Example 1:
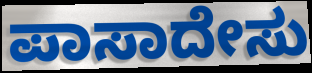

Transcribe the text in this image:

ಪಾಸಾದೇಸು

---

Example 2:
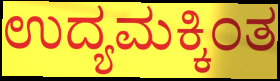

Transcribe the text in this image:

ಉದ್ಯಮಕ್ಕಿಂತ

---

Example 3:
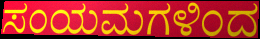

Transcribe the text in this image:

ಸಂಯಮಗಳಿಂದ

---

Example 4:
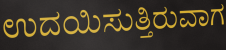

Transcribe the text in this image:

ಉದಯಿಸುತ್ತಿರುವಾಗ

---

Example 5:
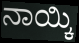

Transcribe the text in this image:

ನಾಯ್ಕಿ